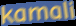
kamali